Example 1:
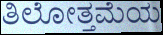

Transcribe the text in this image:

ತಿಲೋತ್ತಮೆಯ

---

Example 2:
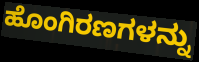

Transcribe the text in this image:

ಹೊಂಗಿರಣಗಳನ್ನು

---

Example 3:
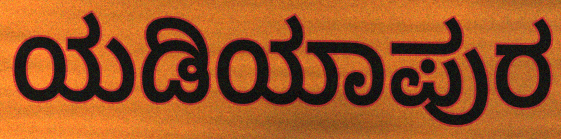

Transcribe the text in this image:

ಯಡಿಯಾಪುರ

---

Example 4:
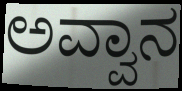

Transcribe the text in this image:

ಅವ್ವಾನ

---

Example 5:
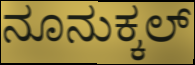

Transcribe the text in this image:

ನೂನುಕ್ಕಲ್